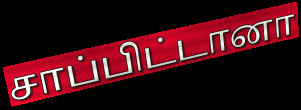
சாப்பிட்டானா